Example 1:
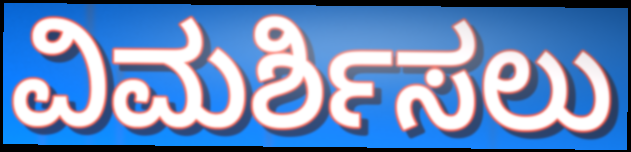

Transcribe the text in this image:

ವಿಮರ್ಶಿಸಲು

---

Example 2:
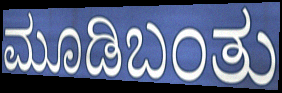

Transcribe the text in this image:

ಮೂಡಿಬಂತು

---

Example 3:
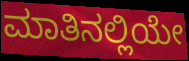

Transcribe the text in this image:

ಮಾತಿನಲ್ಲಿಯೇ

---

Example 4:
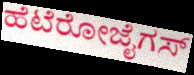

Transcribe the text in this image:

ಹೆಟೆರೋಜೈಗಸ್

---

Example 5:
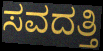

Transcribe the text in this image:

ಸವದತ್ತಿ